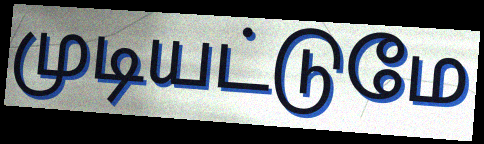
முடியட்டுமே